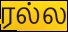
ரல்ல